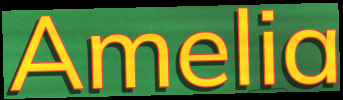
Amelia